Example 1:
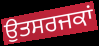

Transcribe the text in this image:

ਉਤਸਰਜਕਾਂ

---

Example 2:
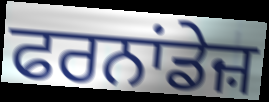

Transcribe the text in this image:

ਫਰਨਾਂਡੇਜ਼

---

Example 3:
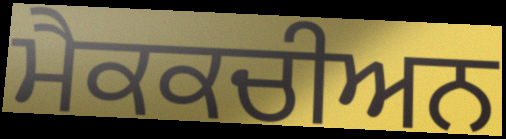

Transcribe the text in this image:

ਮੈਕਕਚੀਅਨ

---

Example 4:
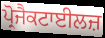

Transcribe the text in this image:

ਪ੍ਰੋਜੈਕਟਾਈਲਜ਼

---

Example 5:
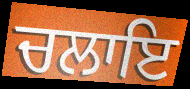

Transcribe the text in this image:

ਚਲਾਇ